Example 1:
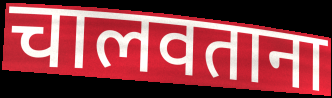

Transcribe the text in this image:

चालवताना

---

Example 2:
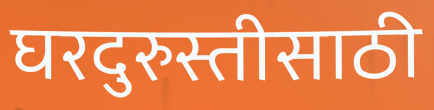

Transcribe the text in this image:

घरदुरुस्तीसाठी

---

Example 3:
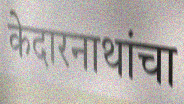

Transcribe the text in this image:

केदारनाथांचा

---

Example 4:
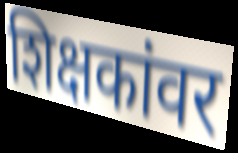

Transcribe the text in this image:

शिक्षकांवर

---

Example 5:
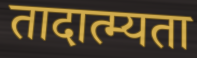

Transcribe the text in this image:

तादात्म्यता